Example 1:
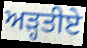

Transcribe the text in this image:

ਅੜ੍ਹਤੀਏ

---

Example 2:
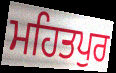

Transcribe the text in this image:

ਮਹਿਤਪੁਰ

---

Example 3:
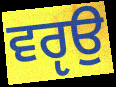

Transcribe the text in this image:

ਵਰੵਉ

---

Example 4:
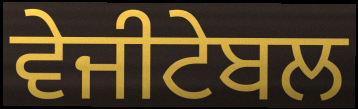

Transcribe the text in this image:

ਵੇਜੀਟੇਬਲ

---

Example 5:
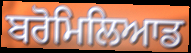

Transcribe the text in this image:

ਬਰੋਮਿਲਿਆਡ